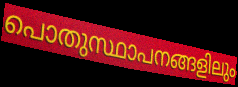
പൊതുസ്ഥാപനങ്ങളിലും